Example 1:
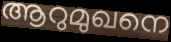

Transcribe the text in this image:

ആറുമുഖനെ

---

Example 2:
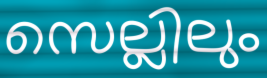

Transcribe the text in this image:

സെല്ലിലും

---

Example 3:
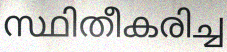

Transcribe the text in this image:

സ്ഥിതീകരിച്ച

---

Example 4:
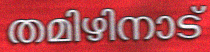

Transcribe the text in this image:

തമിഴിനാട്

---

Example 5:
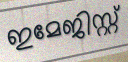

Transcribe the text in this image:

ഇമേജിസ്റ്റ്